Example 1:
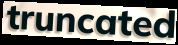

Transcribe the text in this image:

truncated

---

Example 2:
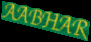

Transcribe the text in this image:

AABHAR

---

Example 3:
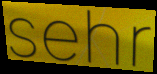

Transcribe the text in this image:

sehr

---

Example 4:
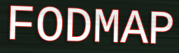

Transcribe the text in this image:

FODMAP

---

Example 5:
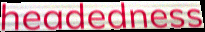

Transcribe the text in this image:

headedness